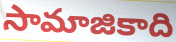
సామాజికాది